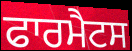
ਫਾਰਮੈਟਸ